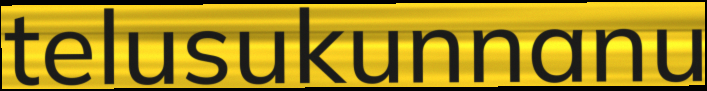
telusukunnanu